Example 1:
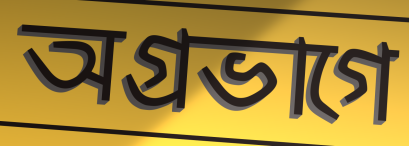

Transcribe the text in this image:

অগ্রভাগে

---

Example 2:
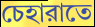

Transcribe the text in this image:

চেহারাতে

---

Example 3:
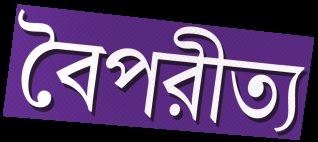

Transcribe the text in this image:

বৈপরীত্য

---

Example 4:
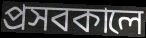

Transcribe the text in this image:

প্রসবকালে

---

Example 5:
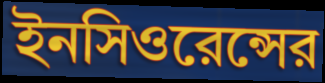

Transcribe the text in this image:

ইনসিওরেন্সের